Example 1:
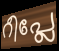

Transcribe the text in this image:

റീപ്ലേ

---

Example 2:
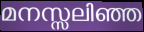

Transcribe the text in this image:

മനസ്സലിഞ്ഞ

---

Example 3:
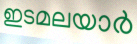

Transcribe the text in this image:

ഇടമലയാർ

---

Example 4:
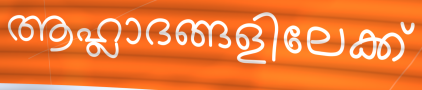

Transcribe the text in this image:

ആഹ്ലാദങ്ങളിലേക്ക്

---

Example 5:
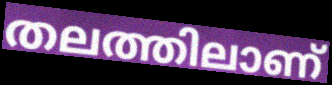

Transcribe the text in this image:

തലത്തിലാണ്